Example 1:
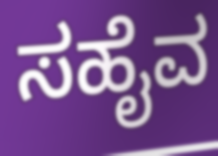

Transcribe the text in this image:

ಸಹೈವ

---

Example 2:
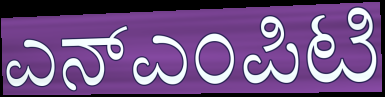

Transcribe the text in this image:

ಎನ್ಎಂಪಿಟಿ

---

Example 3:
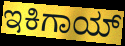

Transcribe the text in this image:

ಇಕಿಗಾಯ್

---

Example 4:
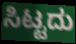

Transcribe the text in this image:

ಸಿಟ್ಟದು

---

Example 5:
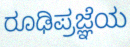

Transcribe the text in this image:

ರೂಢಿಪ್ರಜ್ಞೆಯ